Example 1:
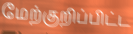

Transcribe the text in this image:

மேற்குறிப்பிட்ட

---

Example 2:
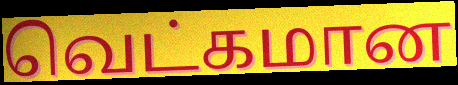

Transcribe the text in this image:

வெட்கமான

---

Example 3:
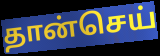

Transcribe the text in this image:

தான்செய்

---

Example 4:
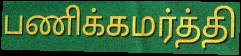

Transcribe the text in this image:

பணிக்கமர்த்தி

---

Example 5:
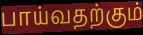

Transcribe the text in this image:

பாய்வதற்கும்